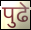
पुढे